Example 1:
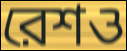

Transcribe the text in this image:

রেশও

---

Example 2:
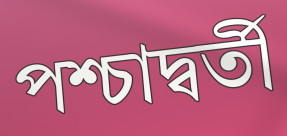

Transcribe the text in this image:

পশ্চাদ্বর্তী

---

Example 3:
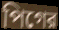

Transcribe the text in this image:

পিগের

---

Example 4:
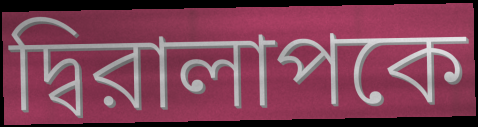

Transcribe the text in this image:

দ্বিরালাপকে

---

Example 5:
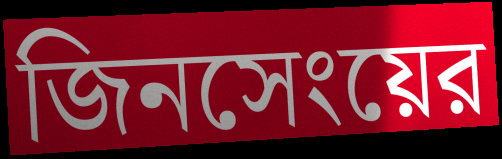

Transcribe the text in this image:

জিনসেংয়ের